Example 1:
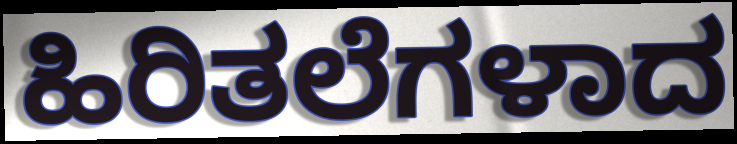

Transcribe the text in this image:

ಹಿರಿತಲೆಗಳಾದ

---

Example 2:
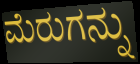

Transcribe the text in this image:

ಮೆರುಗನ್ನು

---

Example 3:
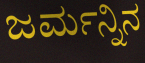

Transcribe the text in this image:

ಜರ್ಮನ್ನಿನ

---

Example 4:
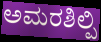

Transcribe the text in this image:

ಅಮರಶಿಲ್ಪಿ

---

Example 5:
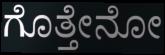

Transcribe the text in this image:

ಗೊತ್ತೇನೋ